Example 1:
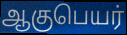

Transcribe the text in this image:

ஆகுபெயர்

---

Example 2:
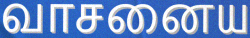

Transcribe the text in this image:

வாசனைய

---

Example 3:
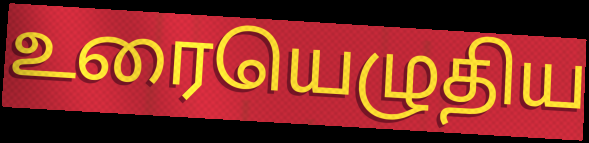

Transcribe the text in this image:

உரையெழுதிய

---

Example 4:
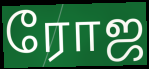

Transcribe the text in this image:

ரோஜ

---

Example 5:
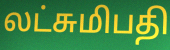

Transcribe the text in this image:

லட்சுமிபதி